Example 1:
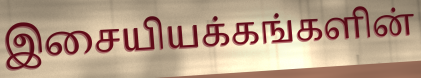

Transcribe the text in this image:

இசையியக்கங்களின்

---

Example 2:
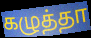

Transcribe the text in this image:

கழுத்தா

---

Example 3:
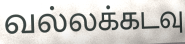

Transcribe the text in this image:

வல்லக்கடவு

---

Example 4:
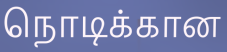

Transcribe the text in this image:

நொடிக்கான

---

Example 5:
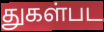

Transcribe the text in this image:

துகள்பட